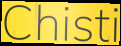
Chisti